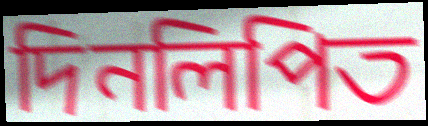
দিনলিপিত